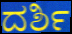
ದರ್ಶಿ